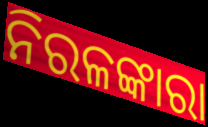
ନିରଳଙ୍କାରା